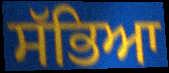
ਸੱਭਿਆ